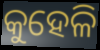
କୁହେଳି